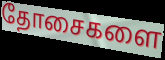
தோசைகளை